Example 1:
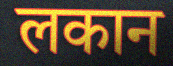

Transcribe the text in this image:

लकान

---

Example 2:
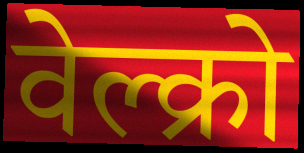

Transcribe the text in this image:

वेल्क्रो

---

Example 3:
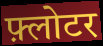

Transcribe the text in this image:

फ़्लोटर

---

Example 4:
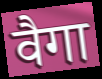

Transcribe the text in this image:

वैगा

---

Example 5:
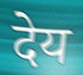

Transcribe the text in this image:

देय